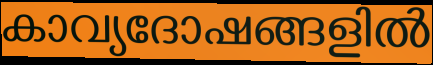
കാവ്യദോഷങ്ങളിൽ